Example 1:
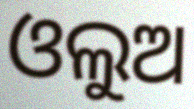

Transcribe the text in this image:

ଓଲୁଅ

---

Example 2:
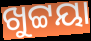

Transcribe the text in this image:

ଖୁଟ୍ଟୟା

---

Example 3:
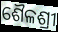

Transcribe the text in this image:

ଶୈଳଶ୍ରୀ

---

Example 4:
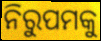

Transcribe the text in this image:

ନିରୁପମକୁ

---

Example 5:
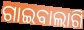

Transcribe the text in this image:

ଗାଇବାଲାଗି